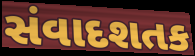
સંવાદશતક